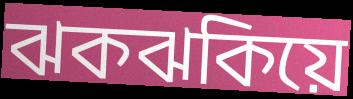
ঝকঝকিয়ে